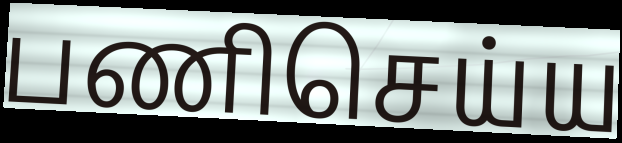
பணிசெய்ய